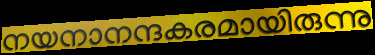
നയനാനന്ദകരമായിരുന്നു